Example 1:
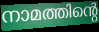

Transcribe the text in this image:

നാമത്തിന്റെ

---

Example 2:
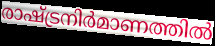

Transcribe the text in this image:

രാഷ്ട്രനിർമാണത്തിൽ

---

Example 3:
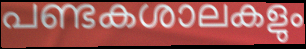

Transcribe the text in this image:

പണ്ടകശാലകളും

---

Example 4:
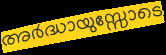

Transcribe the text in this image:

അർദ്ധായുസ്സോടെ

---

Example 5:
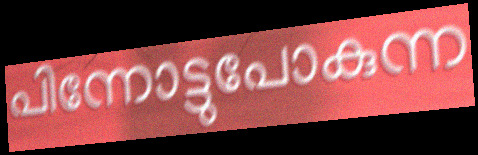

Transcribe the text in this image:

പിന്നോട്ടുപോകുന്ന